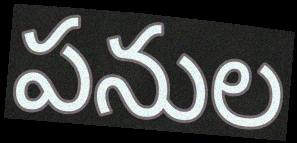
పనుల